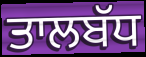
ਤਾਲਬੱਧ